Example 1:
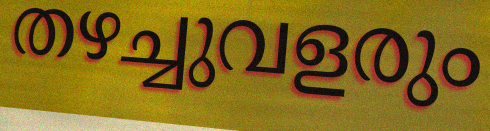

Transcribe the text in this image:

തഴച്ചുവളരും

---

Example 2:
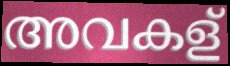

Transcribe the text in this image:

അവകള്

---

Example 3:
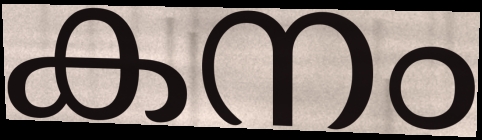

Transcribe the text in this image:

കനം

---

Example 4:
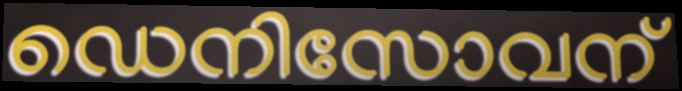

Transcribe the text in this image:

ഡെനിസോവന്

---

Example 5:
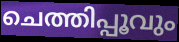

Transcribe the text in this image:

ചെത്തിപ്പൂവും